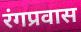
रंगप्रवास